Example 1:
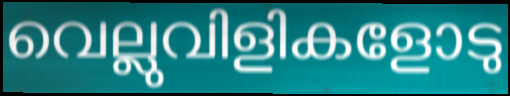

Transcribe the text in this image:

വെല്ലുവിളികളോടു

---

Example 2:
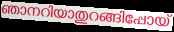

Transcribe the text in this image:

ഞാനറിയാതുറങ്ങിപ്പോയ്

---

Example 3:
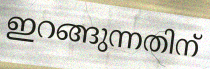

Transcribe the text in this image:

ഇറങ്ങുന്നതിന്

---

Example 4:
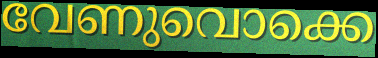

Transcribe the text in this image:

വേണുവൊക്കെ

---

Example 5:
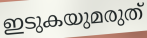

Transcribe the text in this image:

ഇടുകയുമരുത്